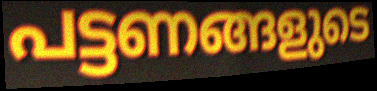
പട്ടണങ്ങളുടെ